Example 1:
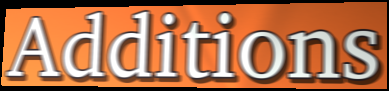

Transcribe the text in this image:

Additions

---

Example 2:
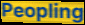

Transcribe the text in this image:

Peopling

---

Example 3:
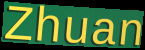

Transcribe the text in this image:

Zhuan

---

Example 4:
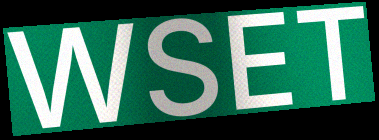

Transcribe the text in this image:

WSET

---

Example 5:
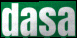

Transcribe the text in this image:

dasa